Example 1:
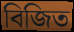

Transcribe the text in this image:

বিজিত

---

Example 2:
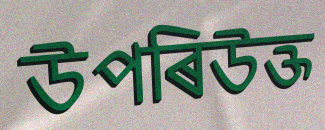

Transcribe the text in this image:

উপৰিউক্ত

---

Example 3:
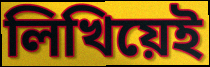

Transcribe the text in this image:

লিখিয়েই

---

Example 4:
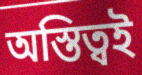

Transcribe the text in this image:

অস্তিত্বই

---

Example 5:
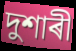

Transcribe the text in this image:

দুশাৰী